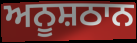
ਅਨੂਸ਼ਠਾਨ